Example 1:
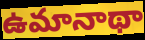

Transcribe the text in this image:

ఉమానాథా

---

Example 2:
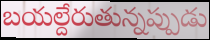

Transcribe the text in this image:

బయల్దేరుతున్నప్పుడు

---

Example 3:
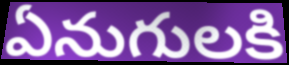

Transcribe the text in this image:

ఏనుగులకి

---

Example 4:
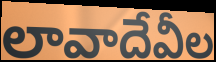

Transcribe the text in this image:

లావాదేవీల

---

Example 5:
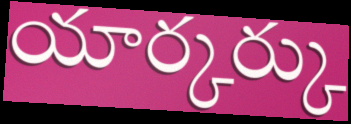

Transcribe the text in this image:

యార్కర్కు